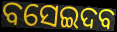
ବସେଇଦବ